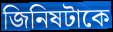
জিনিষটাকে